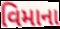
વિમાના